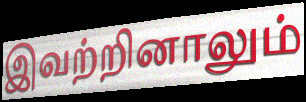
இவற்றினாலும்